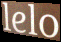
lelo